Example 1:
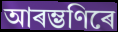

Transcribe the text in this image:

আৰম্ভণিৰে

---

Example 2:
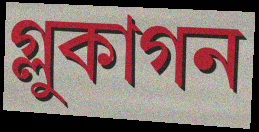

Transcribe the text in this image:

গ্লুকাগন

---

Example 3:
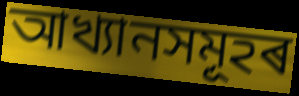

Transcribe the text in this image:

আখ্যানসমূহৰ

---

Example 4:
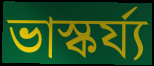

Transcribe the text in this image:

ভাস্কৰ্য্য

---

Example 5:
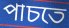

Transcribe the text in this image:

পাচতে